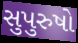
સુપુરુષો